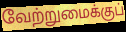
வேற்றுமைக்குப்